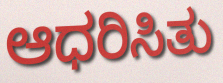
ಆಧರಿಸಿತು